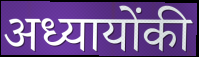
अध्यायोंकी